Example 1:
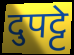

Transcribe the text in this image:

दुपट्टे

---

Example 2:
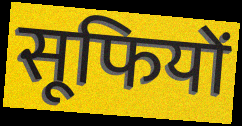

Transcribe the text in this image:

सूफियों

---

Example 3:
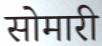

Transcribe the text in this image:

सोमारी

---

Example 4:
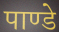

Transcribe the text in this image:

पाण्डे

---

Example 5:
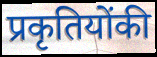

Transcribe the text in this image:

प्रकृतियोंकी